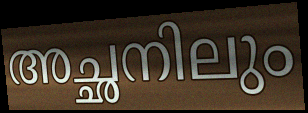
അച്ഛനിലും